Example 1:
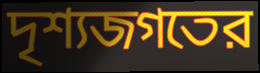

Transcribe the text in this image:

দৃশ্যজগতের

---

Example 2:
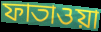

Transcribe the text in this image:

ফাতাওয়া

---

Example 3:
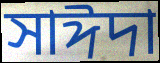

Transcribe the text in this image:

সাঈদা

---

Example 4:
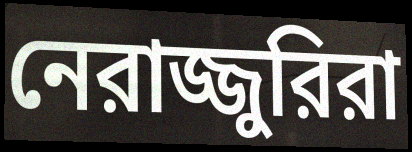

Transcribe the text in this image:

নেরাজ্জুরিরা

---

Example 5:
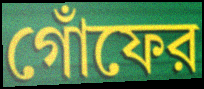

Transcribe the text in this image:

গোঁফের